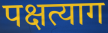
पक्षत्याग